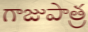
గాజుపాత్ర